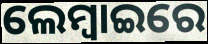
ଲେମ୍ବାଇରେ